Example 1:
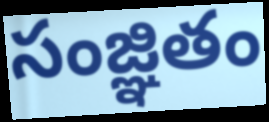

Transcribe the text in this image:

సంజ్ఞితం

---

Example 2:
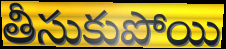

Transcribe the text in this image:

తీసుకుపోయి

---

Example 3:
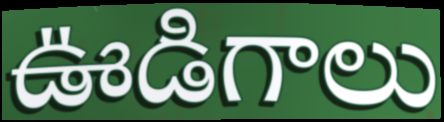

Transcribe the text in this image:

ఊడిగాలు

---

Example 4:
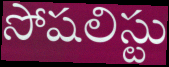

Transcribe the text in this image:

సోషలిస్టు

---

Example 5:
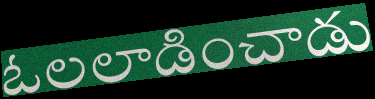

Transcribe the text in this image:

ఓలలాడించాడు